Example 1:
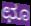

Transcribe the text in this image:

ಛೂ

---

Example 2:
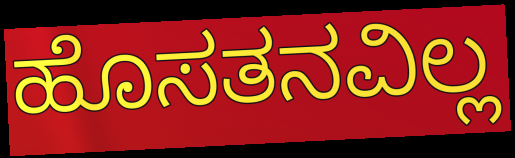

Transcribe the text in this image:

ಹೊಸತನವಿಲ್ಲ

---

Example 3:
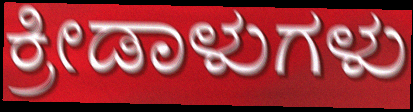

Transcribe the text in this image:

ಕ್ರೀಡಾಳುಗಳು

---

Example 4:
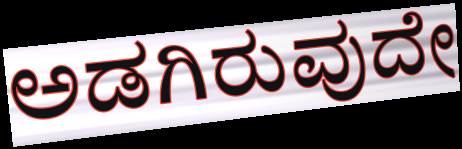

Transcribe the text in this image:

ಅಡಗಿರುವುದೇ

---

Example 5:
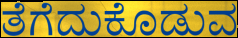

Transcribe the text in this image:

ತೆಗೆದುಕೊಡುವ